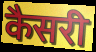
कैसरी